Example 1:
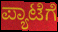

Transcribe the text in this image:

ಪ್ಯಾಟೆಗೆ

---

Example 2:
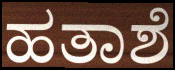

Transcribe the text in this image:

ಹತಾಶೆ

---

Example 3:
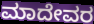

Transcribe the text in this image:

ಮಾದೇವರ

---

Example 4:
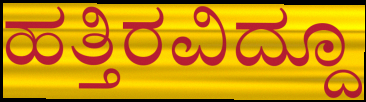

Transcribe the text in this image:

ಹತ್ತಿರವಿದ್ದೂ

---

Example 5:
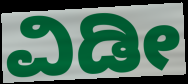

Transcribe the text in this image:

ವಿಡೀ